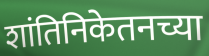
शांतिनिकेतनच्या